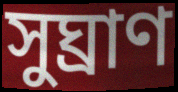
সুঘ্রাণ